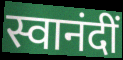
स्वानंदीं